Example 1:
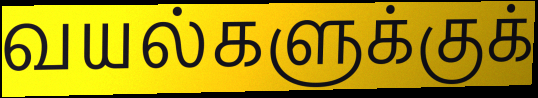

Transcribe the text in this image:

வயல்களுக்குக்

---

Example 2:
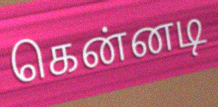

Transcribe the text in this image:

கென்னடி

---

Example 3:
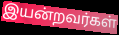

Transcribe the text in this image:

இயன்றவர்கள்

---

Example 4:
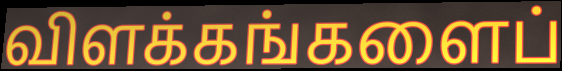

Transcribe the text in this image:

விளக்கங்களைப்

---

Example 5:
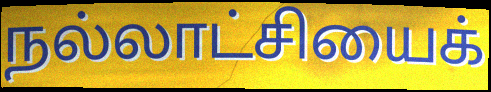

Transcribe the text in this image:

நல்லாட்சியைக்